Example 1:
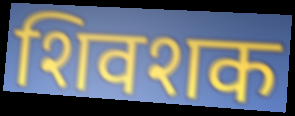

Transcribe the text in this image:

शिवशक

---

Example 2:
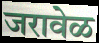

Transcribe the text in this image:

जरावेळ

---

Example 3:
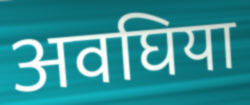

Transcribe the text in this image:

अवघिया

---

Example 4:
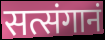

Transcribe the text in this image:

सत्संगानं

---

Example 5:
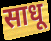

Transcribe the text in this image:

साधू